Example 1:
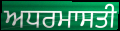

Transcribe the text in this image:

ਅਧਰਮਾਸਤੀ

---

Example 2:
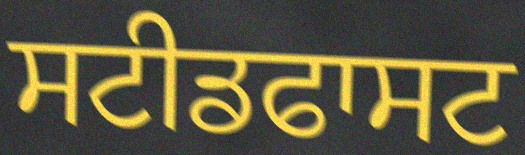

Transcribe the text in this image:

ਸਟੀਡਫਾਸਟ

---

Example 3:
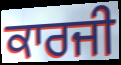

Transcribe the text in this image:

ਕਾਰਜੀ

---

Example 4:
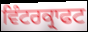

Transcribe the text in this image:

ਵਿੰਟਰਕ੍ਰਾਫਟ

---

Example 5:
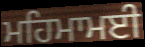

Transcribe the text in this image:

ਮਹਿਮਾਮਈ